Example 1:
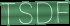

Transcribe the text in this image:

TSDF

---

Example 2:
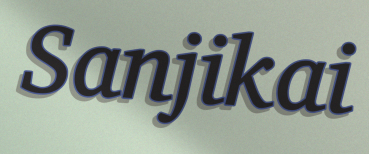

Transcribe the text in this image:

Sanjikai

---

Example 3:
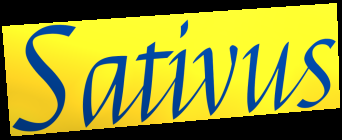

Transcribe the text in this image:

Sativus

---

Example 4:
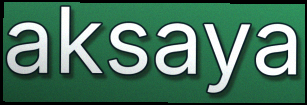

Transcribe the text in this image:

aksaya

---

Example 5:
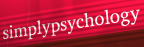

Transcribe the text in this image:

simplypsychology